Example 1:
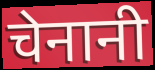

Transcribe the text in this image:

चेनानी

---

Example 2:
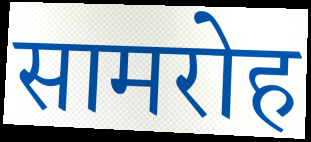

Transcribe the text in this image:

सामरोह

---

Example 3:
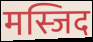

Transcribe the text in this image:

मस्जिद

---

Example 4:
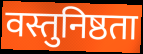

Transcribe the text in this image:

वस्तुनिष्ठता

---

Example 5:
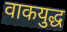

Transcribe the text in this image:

वाकयुद्ध